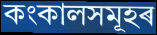
কংকালসমূহৰ